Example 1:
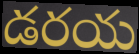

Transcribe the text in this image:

డరయ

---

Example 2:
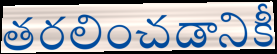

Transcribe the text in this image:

తరలించడానికీ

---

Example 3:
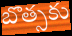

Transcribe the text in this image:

బొత్సకు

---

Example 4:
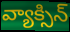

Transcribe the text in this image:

వ్యాక్సిన్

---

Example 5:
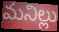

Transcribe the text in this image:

మనిల్లు